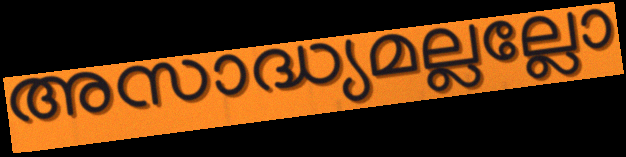
അസാദ്ധ്യമല്ലല്ലോ